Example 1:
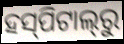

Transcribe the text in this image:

ହସ୍‌ପିଟାଲ୍‌ରୁ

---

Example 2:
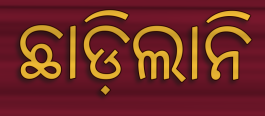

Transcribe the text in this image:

ଛାଡ଼ିଲାନି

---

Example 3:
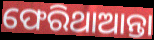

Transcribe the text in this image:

ଫେରିଥାଆନ୍ତା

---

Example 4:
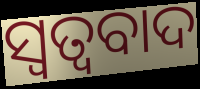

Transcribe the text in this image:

ସ୍ୱତ୍ୱବାଦ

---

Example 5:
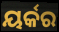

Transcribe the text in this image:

ୟର୍କର